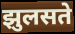
झुलसते